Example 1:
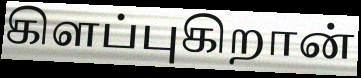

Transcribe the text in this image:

கிளப்புகிறான்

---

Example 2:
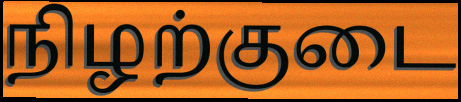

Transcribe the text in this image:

நிழற்குடை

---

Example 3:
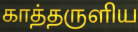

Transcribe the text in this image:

காத்தருளிய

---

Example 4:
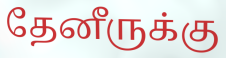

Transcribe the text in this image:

தேனீருக்கு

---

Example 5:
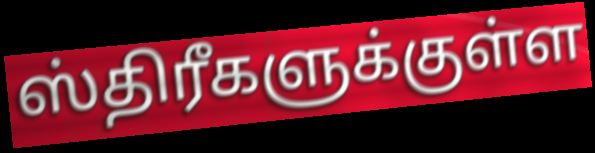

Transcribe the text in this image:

ஸ்திரீகளுக்குள்ள